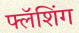
फ्लॅशिंग